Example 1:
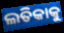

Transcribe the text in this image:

ଲତିକାକୁ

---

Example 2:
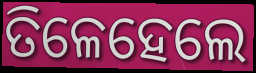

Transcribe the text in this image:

ତିଳେହେଲେ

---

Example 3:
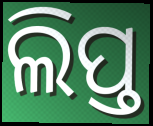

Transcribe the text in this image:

ଲିପ୍ତ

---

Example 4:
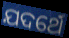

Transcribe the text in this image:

ଯଦର୍ଥେ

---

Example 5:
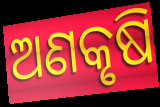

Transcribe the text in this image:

ଅଣକୃଷି